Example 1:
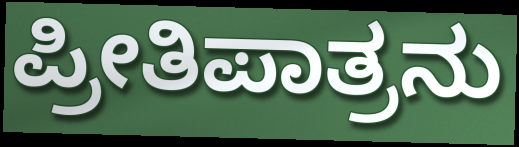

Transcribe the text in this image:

ಪ್ರೀತಿಪಾತ್ರನು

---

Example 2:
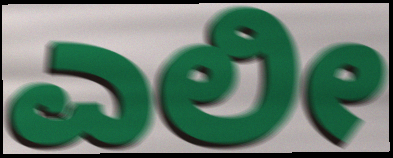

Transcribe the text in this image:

ಎಲೀ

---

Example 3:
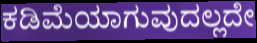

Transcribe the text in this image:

ಕಡಿಮೆಯಾಗುವುದಲ್ಲದೇ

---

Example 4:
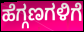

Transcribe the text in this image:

ಹೆಗ್ಗಣಗಳಿಗೆ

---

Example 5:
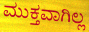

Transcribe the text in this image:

ಮುಕ್ತವಾಗಿಲ್ಲ